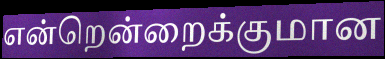
என்றென்றைக்குமான